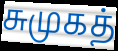
சுமுகத்